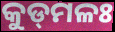
କୁଡ୍‌ମଳଃ